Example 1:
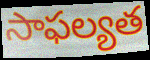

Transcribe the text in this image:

సాఫల్యత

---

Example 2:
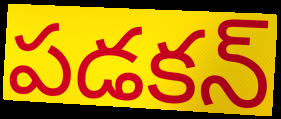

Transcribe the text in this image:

పడకన్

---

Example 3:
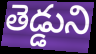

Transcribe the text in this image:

తెడ్డుని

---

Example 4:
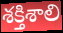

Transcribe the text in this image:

శక్తిశాలి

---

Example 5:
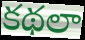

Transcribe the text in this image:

కథలా